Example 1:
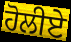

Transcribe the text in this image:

ਹੋਲੀਏ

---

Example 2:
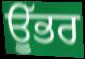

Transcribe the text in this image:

ਊੱਭਰ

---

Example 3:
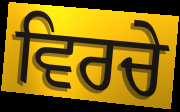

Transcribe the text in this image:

ਵਿਰਚੇ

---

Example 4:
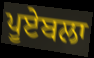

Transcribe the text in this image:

ਪੂਏਬਲਾ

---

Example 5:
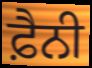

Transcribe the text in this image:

ਫ਼ੈਨੀ